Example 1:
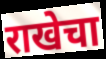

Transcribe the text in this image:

राखेचा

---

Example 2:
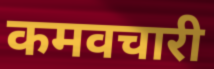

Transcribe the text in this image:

कमवचारी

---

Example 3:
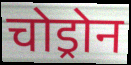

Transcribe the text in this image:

चोड्रोन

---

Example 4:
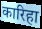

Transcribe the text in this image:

कारिहा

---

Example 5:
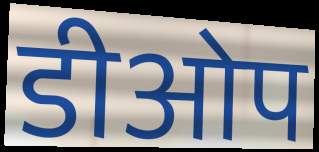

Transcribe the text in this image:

डीओप